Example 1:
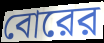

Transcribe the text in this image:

বোরের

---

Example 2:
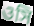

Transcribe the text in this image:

ওসি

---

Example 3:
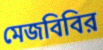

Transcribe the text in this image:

মেজবিবির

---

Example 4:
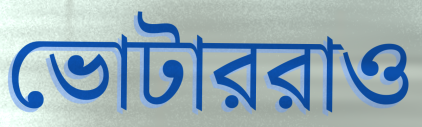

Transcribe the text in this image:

ভোটাররাও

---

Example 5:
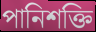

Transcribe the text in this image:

পানিশক্তি